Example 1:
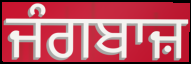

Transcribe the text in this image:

ਜੰਗਬਾਜ਼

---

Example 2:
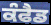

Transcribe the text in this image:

ਕੰਫੈਡ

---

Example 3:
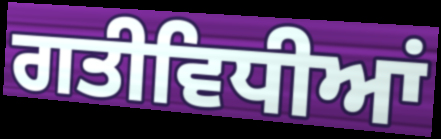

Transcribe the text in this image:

ਗਤੀਵਿਧੀਆਂ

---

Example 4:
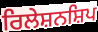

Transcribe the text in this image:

ਰਿਲੇਸ਼ਨਸ਼ਿਪ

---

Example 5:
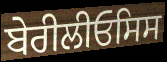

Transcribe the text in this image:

ਬੇਰੀਲੀਓਸਿਸ